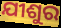
ଯୀଶୁର